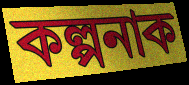
কল্পনাক